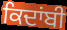
ਕਿਦਾਂਬੀ